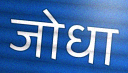
जोधा